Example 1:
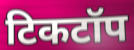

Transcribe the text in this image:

टिकटॉप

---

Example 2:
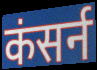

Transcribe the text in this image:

कंसर्न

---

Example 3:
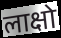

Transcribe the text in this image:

लाक्षो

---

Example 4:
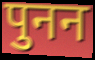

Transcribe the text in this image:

पुनन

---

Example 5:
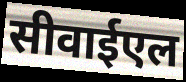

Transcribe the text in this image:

सीवाईएल